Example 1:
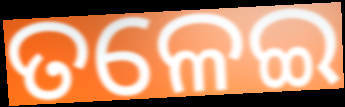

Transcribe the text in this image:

ତଳେଇ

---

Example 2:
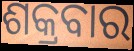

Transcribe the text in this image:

ଶକ୍ରବାର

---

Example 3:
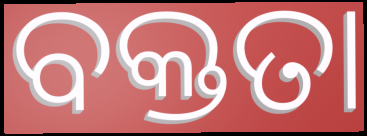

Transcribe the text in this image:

ବକ୍ତତା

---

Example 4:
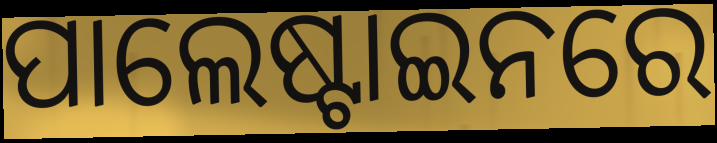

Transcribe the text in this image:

ପାଲେଷ୍ଟାଇନରେ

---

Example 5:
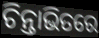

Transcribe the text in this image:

ଚିନ୍ତାଭିତରେ